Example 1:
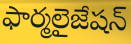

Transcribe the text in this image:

ఫార్మలైజేషన్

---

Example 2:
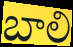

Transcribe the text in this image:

బాలి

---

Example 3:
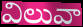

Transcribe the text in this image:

విలువా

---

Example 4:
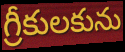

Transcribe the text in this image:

గ్రీకులకును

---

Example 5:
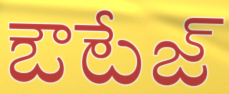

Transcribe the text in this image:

ఔటేజ్